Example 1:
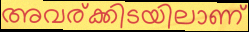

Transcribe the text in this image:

അവര്ക്കിടയിലാണ്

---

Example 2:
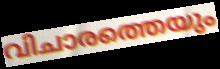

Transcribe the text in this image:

വിചാരത്തെയും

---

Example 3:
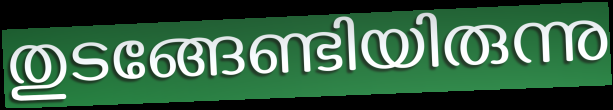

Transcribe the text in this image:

തുടങ്ങേണ്ടിയിരുന്നു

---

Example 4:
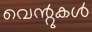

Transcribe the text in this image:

വെന്റുകൾ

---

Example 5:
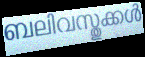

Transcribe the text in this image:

ബലിവസ്തുക്കൾ